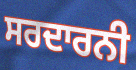
ਸਰਦਾਰਨੀ